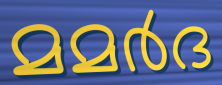
മമർദ